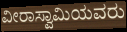
ವೀರಾಸ್ವಾಮಿಯವರು